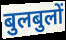
बुलबुलों